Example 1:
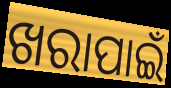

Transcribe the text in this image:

ଖରାପାଇଁ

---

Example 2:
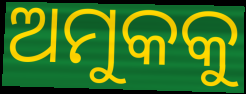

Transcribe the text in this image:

ଅମୁକକୁ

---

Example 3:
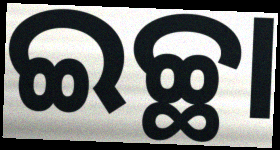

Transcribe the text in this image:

ଇଚ୍ଛା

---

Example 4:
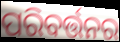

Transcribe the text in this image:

ପରିବର୍ତ୍ତନର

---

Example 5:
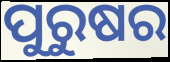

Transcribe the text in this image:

ପୁରୁଷର